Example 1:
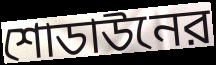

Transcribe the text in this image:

শোডাউনের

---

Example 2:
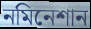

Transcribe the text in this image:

নমিনেশান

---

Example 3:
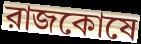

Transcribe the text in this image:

রাজকোষে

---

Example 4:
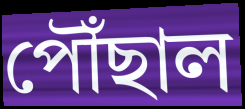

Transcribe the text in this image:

পৌঁছাল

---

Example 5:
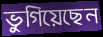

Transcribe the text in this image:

ভুগিয়েছেন